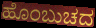
ಹೊಂಬುಚದ